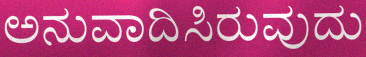
ಅನುವಾದಿಸಿರುವುದು